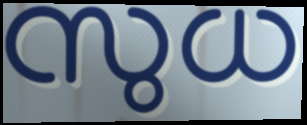
സുധ